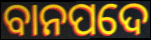
ବାନପଦେ